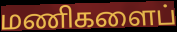
மணிகளைப்